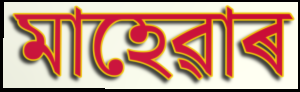
মাহেৱাৰ